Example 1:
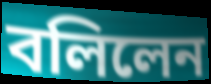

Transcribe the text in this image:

বলিলেন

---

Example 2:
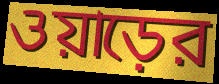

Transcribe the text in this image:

ওয়াড়ের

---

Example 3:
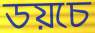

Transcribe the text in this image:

ডয়চে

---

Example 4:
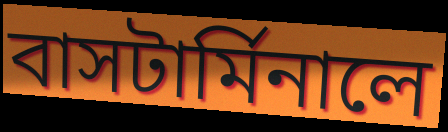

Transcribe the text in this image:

বাসটার্মিনালে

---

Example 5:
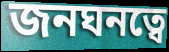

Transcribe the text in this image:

জনঘনত্বে